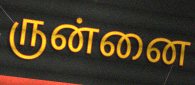
ருன்னை